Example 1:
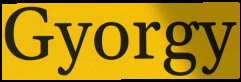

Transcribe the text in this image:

Gyorgy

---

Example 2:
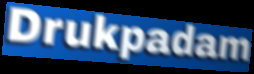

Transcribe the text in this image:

Drukpadam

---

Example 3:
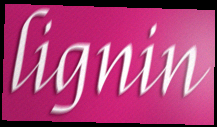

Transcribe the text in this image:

lignin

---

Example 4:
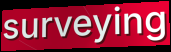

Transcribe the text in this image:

surveying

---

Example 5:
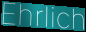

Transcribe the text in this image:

Ehrlich